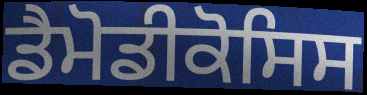
ਡੈਮੋਡੀਕੋਸਿਸ